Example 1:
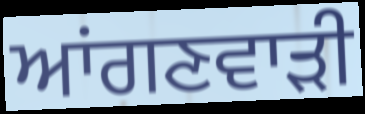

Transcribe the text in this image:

ਆਂਗਣਵਾੜੀ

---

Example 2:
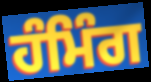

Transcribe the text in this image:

ਹੰਮਿੰਗ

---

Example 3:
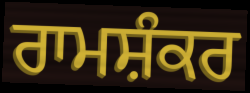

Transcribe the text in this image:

ਰਾਮਸ਼ੰਕਰ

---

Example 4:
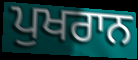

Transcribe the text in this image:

ਪੁਖਰਾਨ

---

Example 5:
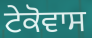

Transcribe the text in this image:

ਟੇਕੋਵਾਸ